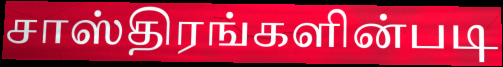
சாஸ்திரங்களின்படி